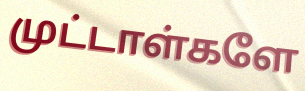
முட்டாள்களே